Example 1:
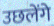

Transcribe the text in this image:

उछलेंगे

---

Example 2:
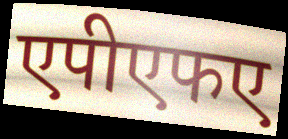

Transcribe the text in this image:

एपीएफए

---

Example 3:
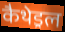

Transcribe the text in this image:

कैथेड्रल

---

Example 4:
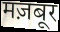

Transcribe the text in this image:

मज़बूर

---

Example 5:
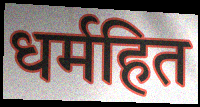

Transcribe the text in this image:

धर्महित